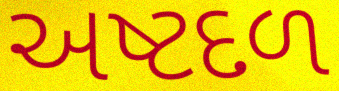
અષ્ટદળ